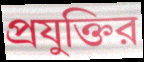
প্রযুক্তির